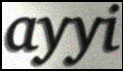
ayyi